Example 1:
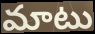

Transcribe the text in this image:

మాటు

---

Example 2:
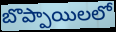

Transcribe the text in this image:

బొప్పాయిలలో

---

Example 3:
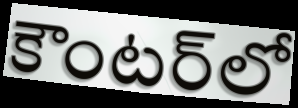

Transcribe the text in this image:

కౌంటర్‌లో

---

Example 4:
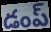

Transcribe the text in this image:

డంప్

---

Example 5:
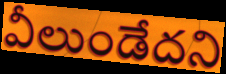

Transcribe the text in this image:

వీలుండేదని